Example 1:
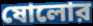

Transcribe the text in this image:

ষোলোর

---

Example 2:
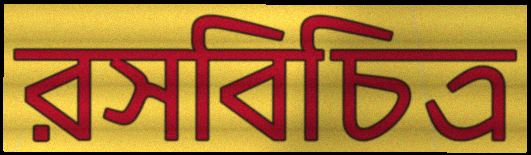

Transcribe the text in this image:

রসবিচিত্র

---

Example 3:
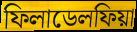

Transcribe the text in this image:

ফিলাডেলফিয়া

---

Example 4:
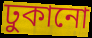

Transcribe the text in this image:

ঢুকানো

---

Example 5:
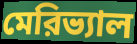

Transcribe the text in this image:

মেরিভ্যাল